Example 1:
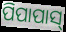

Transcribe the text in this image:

ପିପାପାସ୍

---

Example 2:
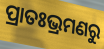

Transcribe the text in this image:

ପ୍ରାତଃଭ୍ରମଣରୁ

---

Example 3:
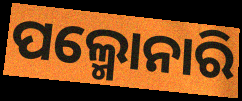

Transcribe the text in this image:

ପଲ୍ମୋନାରି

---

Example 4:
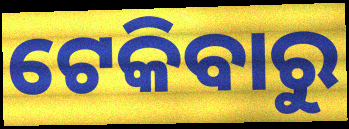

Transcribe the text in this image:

ଟେକିବାରୁ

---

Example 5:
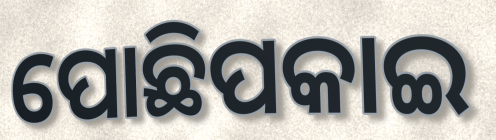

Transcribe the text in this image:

ପୋଛିପକାଇ